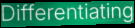
Differentiating